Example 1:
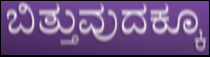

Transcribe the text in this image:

ಬಿತ್ತುವುದಕ್ಕೂ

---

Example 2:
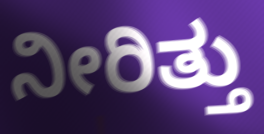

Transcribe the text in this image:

ನೀರಿತ್ತು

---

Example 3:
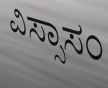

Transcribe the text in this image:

ವಿಸ್ಸಾಸಂ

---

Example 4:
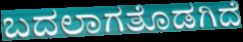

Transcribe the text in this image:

ಬದಲಾಗತೊಡಗಿದೆ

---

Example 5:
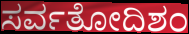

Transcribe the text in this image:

ಸರ್ವತೋದಿಶಂ